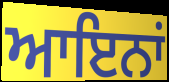
ਆਇਨਾਂ